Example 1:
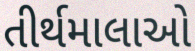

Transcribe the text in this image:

તીર્થમાલાઓ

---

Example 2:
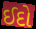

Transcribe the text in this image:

ઈદો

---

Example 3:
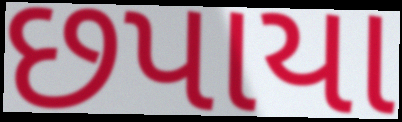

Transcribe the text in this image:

છપાયા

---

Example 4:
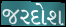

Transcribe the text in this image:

જરદોશ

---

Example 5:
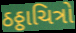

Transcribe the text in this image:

ઠઠ્ઠાચિત્રો